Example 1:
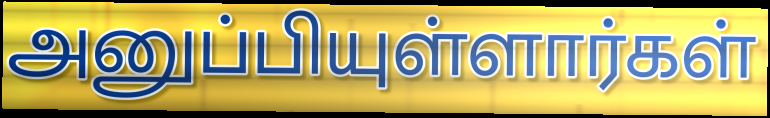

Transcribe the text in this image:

அனுப்பியுள்ளார்கள்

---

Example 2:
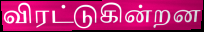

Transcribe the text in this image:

விரட்டுகின்றன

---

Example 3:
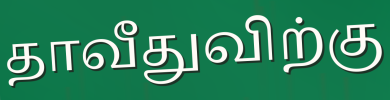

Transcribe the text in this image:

தாவீதுவிற்கு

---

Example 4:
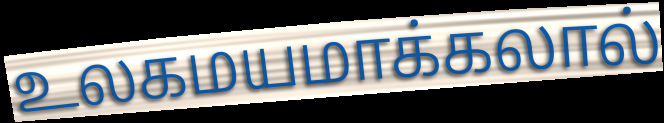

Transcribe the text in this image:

உலகமயமாக்கலால்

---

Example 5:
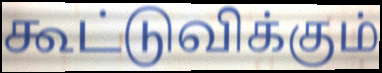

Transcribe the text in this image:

கூட்டுவிக்கும்